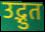
उद्भुत